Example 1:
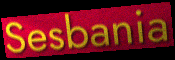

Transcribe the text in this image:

Sesbania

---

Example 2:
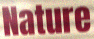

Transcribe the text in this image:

Nature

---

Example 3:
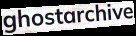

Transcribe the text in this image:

ghostarchive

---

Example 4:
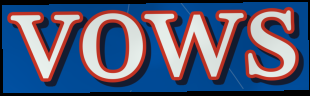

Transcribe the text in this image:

vows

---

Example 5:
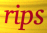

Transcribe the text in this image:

rips